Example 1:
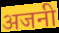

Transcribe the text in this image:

अजनी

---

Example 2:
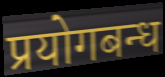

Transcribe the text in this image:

प्रयोगबन्ध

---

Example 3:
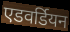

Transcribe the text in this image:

एडवर्डियन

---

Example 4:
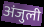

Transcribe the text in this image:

अंजुली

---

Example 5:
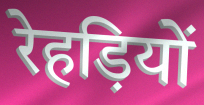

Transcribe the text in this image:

रेहड़ियों